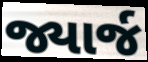
જ્યાર્જ